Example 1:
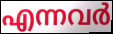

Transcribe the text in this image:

എന്നവർ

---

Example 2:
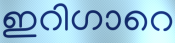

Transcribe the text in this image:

ഇറിഗാറെ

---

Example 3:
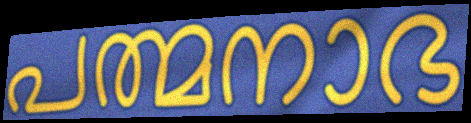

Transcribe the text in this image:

പത്മനാഭ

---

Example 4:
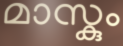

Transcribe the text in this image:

മാസ്കും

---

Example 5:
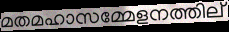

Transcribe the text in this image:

മതമഹാസമ്മേളനത്തില്